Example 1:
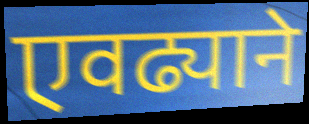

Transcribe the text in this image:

एवढ्याने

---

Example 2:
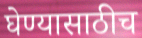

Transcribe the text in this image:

घेण्यासाठीच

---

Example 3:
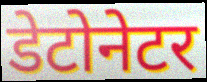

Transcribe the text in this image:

डेटोनेटर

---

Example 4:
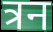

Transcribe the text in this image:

त्रन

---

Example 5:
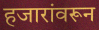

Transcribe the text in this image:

हजारांवरून